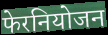
फेरनियोजन